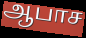
ஆபாச